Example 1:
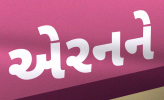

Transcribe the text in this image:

એરનને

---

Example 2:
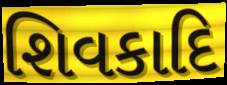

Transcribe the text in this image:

શિવકાદિ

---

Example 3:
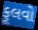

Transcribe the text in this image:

ફૂલવો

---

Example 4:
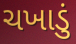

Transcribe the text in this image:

ચખાડું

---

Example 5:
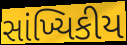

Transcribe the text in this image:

સાંખ્યિકીય